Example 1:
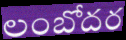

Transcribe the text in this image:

లంబోదర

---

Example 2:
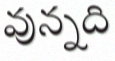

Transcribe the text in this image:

వున్నది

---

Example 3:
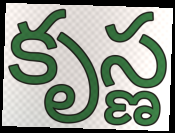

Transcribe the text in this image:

కృస్ణ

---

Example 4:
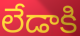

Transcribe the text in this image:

లేడాకి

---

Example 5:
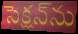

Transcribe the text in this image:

సెక్షన్‌ను